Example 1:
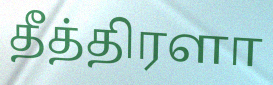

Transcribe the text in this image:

தீத்திரளா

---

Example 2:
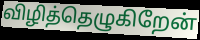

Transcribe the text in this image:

விழித்தெழுகிறேன்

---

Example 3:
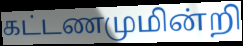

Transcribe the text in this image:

கட்டணமுமின்றி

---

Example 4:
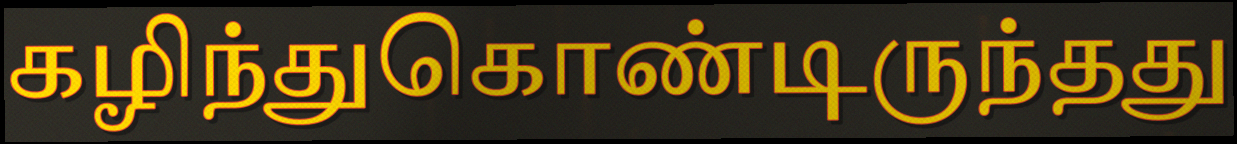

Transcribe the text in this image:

கழிந்துகொண்டிருந்தது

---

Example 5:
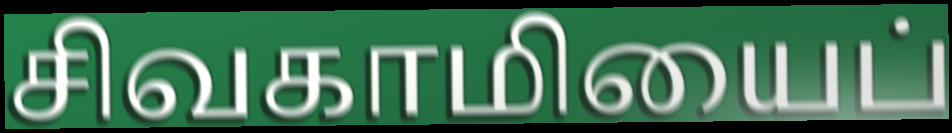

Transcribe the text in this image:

சிவகாமியைப்